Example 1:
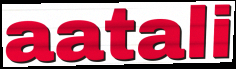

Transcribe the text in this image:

aatali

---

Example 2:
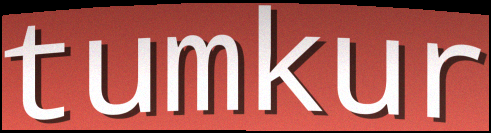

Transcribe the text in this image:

tumkur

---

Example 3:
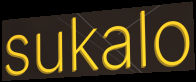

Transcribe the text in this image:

sukalo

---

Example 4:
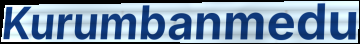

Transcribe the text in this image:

Kurumbanmedu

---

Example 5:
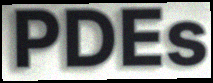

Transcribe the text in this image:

PDEs